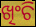
ଖିଂଚି